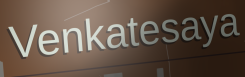
Venkatesaya